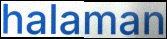
halaman